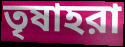
তৃষাহরা